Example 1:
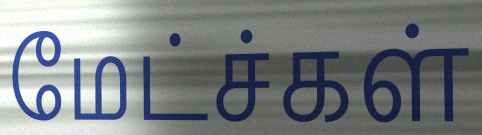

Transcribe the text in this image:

மேட்ச்கள்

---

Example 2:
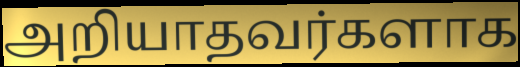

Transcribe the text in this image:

அறியாதவர்களாக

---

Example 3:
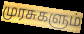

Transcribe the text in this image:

முரசுகளும்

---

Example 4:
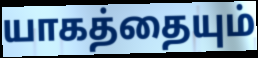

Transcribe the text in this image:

யாகத்தையும்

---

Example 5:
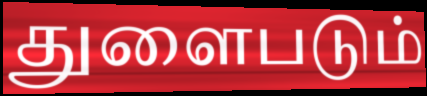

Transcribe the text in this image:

துளைபடும்